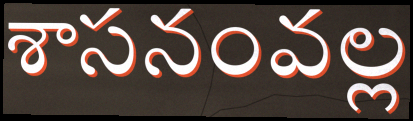
శాసనంవల్ల